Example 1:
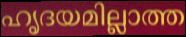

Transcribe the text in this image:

ഹൃദയമില്ലാത്ത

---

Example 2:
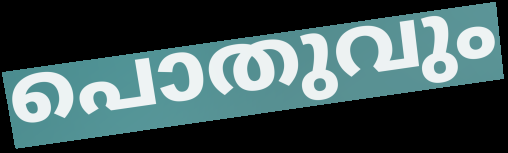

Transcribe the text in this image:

പൊതുവും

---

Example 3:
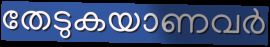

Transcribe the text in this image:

തേടുകയാണവർ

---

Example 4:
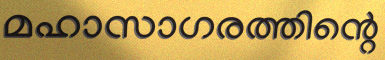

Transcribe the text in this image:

മഹാസാഗരത്തിന്റെ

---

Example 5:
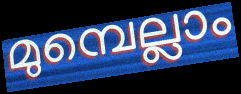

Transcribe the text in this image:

മുമ്പെല്ലാം